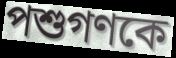
পশুগণকে